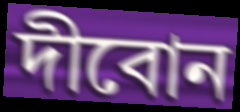
দীবোন